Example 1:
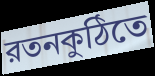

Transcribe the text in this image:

রতনকুঠিতে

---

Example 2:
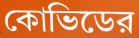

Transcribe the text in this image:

কোভিডের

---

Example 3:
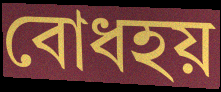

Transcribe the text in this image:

বোধহয়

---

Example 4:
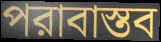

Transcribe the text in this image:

পরাবাস্তব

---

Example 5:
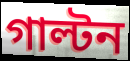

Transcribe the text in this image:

গাল্টন